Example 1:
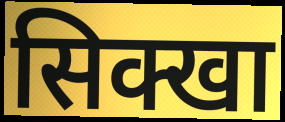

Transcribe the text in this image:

सिक्खा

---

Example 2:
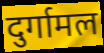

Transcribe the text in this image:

दुर्गामल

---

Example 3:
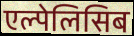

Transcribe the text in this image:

एल्पेलिसिब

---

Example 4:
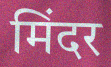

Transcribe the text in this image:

मिंदर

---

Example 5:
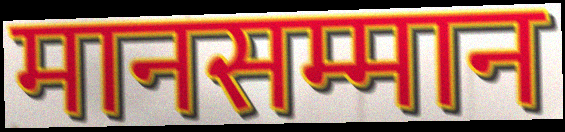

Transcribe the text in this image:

मानसम्मान